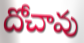
దోచావు